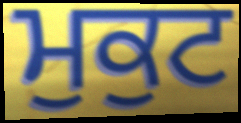
ਮੁਕੁਟ